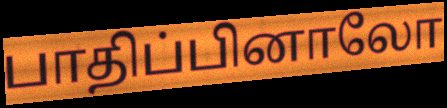
பாதிப்பினாலோ